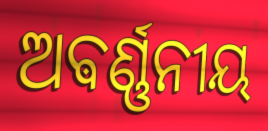
ଅଵର୍ଣ୍ଣନୀୟ